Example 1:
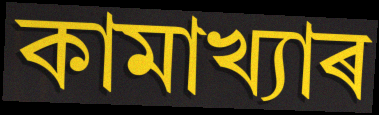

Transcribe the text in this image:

কামাখ্যাৰ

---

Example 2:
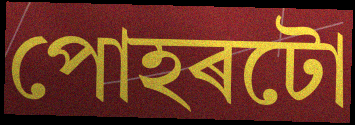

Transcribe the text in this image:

পোহৰটো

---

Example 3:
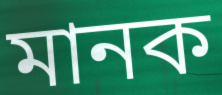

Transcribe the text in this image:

মানক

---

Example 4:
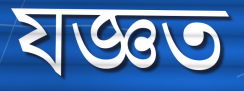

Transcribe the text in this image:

যজ্ঞত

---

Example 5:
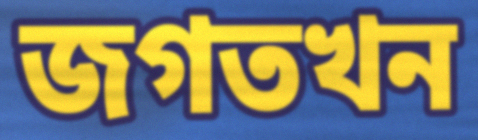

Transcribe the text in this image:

জগতখন